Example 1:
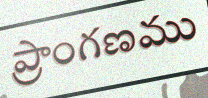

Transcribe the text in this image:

ప్రాంగణము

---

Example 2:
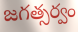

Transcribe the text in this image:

జగత్సర్వం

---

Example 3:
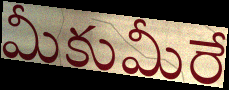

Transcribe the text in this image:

మీకుమీరే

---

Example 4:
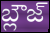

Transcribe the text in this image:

బ్లౌజ్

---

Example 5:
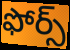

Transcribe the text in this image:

ఫోర్స్